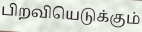
பிறவியெடுக்கும்